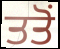
ਤਤੋਂ